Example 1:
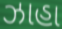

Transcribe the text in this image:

ઝાહા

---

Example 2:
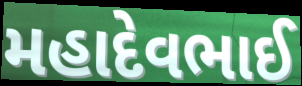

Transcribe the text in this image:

મહાદેવભાઈ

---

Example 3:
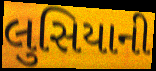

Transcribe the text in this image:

લુસિયાની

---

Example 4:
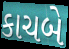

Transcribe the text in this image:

કાચબે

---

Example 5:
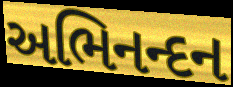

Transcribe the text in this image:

અભિનન્દન